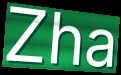
Zha